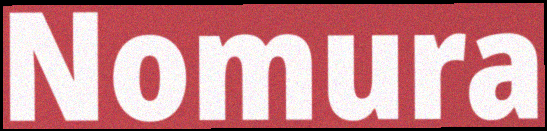
Nomura